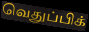
வெதுப்பிக்